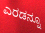
ಎರಡನ್ನೂ